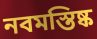
নবমস্তিষ্ক